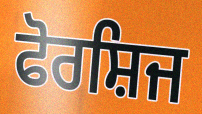
ਫੋਰਸ਼ਿਜ